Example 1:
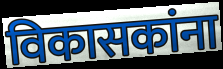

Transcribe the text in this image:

विकासकांना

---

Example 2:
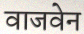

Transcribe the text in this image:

वाजवेन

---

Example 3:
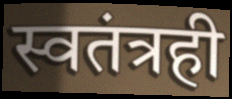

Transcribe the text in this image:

स्वतंत्रही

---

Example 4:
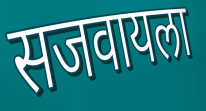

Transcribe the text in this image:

सजवायला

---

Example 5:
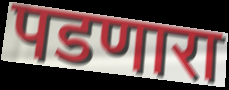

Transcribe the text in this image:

पडणारा